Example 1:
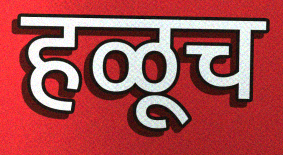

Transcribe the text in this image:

हळूच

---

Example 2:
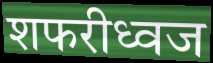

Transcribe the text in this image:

शफरीध्वज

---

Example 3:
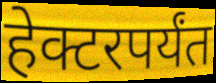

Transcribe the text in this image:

हेक्टरपर्यंत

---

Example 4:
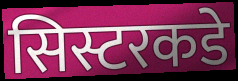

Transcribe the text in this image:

सिस्टरकडे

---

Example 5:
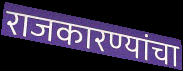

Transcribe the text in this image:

राजकारण्यांचा